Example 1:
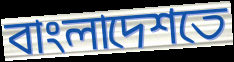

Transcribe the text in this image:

বাংলাদেশতে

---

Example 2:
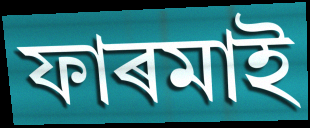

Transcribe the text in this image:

ফাৰমাই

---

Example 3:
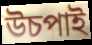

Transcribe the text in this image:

উচপাই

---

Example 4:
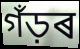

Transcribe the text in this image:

গঁড়ৰ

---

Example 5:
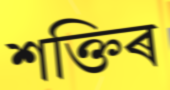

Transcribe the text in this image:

শক্তিৰ